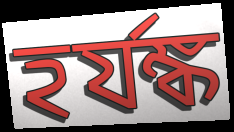
হর্যঙ্ক